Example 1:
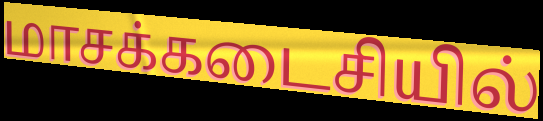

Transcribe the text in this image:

மாசக்கடைசியில்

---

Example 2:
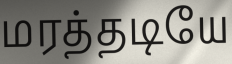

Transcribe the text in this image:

மரத்தடியே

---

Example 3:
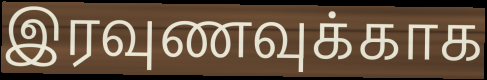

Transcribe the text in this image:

இரவுணவுக்காக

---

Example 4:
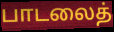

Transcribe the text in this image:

பாடலைத்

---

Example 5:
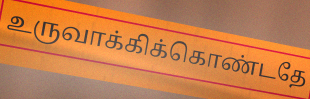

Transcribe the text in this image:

உருவாக்கிக்கொண்டதே